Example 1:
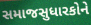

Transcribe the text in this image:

સમાજસુધારકોને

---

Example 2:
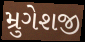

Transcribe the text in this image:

મ્રુગેશજી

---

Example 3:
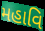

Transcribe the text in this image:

મહાવિ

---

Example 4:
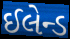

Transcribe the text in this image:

ઈલેન્ડ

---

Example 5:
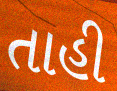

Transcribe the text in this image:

તાહી